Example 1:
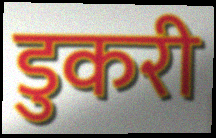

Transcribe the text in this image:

डुकरी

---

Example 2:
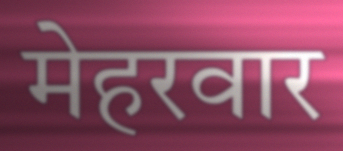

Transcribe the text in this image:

मेहरवार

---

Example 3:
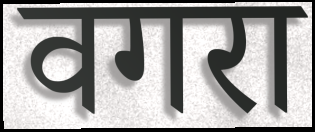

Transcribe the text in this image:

वगरा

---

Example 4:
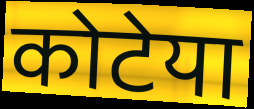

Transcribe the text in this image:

कोटेया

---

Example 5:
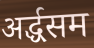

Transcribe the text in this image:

अर्द्धसम